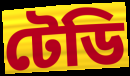
টেডি